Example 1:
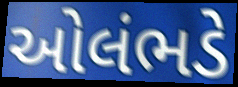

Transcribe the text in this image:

ઓલંભડે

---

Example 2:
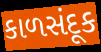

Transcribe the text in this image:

કાળસંદૂક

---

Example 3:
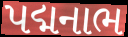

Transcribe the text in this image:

પદ્મનાભ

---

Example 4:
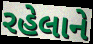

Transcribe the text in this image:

રહેલાને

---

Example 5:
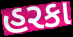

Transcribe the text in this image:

હરકા